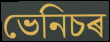
ভেনিচৰ